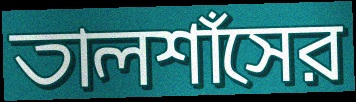
তালশাঁসের